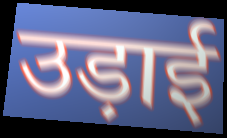
उड़ाई